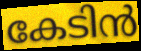
കേടിൻ